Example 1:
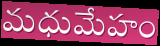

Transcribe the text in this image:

మధుమేహం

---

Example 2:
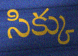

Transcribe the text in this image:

సిక్కు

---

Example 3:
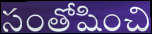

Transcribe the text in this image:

సంతోషించి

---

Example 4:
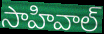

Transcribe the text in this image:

సాహివాల్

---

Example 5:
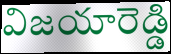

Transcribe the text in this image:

విజయారెడ్డి